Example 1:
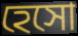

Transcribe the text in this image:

হেসো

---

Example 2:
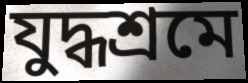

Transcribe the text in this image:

যুদ্ধশ্রমে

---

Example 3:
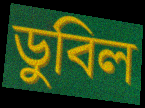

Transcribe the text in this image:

ডুবিল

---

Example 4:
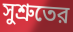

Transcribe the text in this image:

সুশ্রুতের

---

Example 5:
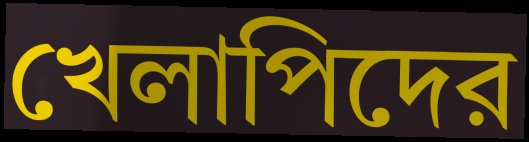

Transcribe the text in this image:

খেলাপিদের